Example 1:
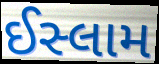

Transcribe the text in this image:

ઈસ્લામ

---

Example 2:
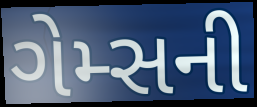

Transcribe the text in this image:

ગેમ્સની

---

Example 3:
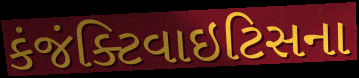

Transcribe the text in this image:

કંજંક્ટિવાઇટિસના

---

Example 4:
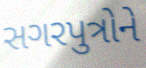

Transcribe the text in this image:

સગરપુત્રોને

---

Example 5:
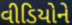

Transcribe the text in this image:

વીડિયોને